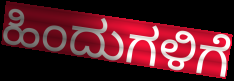
ಹಿಂದುಗಳಿಗೆ